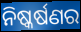
ନିଷ୍କର୍ଷଣର